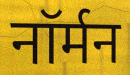
नॉर्मन